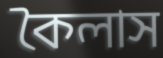
কৈলাস